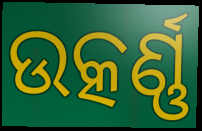
ଉତ୍କର୍ଣ୍ଣ